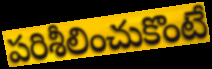
పరిశీలించుకొంటే